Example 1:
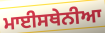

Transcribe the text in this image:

ਮਾਈਸਥੇਨੀਆ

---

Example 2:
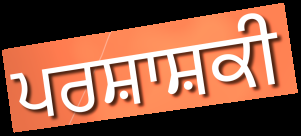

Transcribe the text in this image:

ਪਰਸ਼ਾਸ਼ਕੀ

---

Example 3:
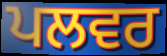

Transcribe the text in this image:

ਪਲਵਰ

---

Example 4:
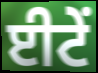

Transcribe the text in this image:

ਈਟੇਂ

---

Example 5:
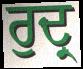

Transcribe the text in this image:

ਰੁਦ੍ਰ